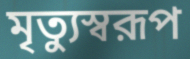
মৃত্যুস্বরূপ